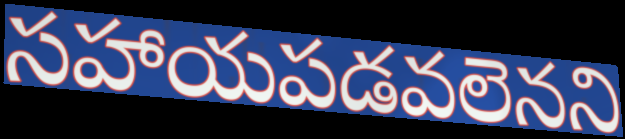
సహాయపడవలెనని